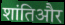
शांतिऔर